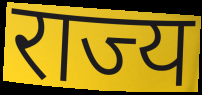
राज्य